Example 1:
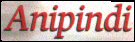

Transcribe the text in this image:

Anipindi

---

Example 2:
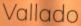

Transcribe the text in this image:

Vallado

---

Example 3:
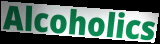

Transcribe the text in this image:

Alcoholics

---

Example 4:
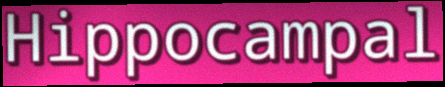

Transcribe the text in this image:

Hippocampal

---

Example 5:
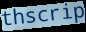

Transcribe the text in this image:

thscrip